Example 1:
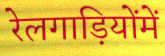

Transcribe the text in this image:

रेलगाड़ियोंमें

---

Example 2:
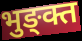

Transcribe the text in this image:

भुङ्क्त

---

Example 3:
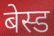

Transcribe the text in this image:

बेस्ड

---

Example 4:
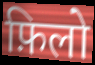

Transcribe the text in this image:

फ़िलो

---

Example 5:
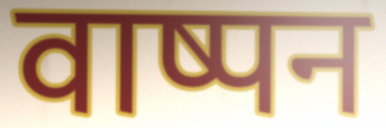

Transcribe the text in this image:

वाष्पन